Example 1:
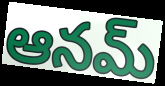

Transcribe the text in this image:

ఆనమ్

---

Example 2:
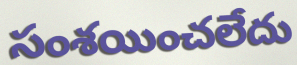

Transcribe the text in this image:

సంశయించలేదు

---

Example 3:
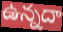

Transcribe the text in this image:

ఉన్నదా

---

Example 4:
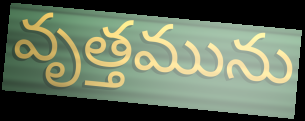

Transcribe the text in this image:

వృత్తమును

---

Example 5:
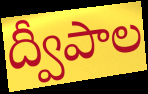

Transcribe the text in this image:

ద్వీపాల